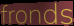
fronds